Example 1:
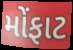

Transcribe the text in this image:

મોંફાટ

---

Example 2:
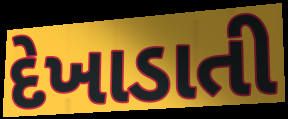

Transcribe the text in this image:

દેખાડાતી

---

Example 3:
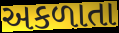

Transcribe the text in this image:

અકળાતા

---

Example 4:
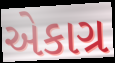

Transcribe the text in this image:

એકાગ્ર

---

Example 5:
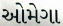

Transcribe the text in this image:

ઓમેગા